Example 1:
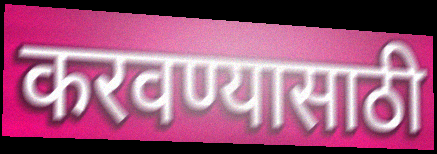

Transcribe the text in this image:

करवण्यासाठी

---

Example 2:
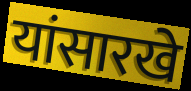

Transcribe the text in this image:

यांसारखे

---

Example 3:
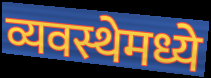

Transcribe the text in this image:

व्यवस्थेमध्ये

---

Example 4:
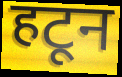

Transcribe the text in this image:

हटून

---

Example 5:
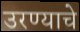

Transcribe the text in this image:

उरण्याचे